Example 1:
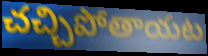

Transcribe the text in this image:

చచ్చిపోతాయట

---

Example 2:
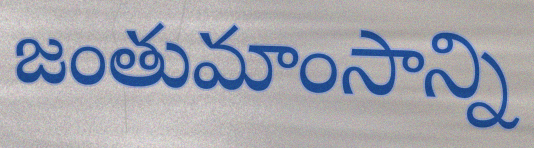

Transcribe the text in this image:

జంతుమాంసాన్ని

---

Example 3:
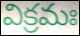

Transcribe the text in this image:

విక్రమః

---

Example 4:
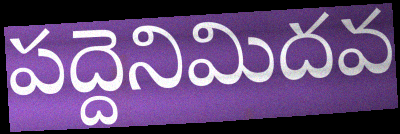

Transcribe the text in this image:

పద్దెనిమిదవ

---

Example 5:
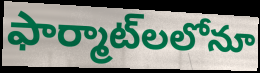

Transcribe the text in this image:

ఫార్మాట్‌లలోనూ